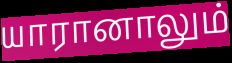
யாரானாலும்